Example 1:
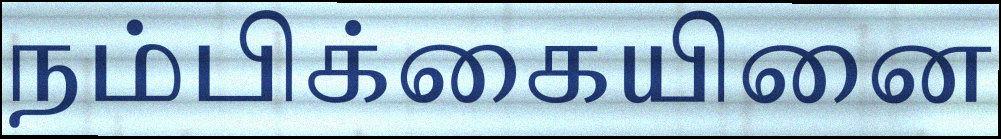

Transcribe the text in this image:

நம்பிக்கையினை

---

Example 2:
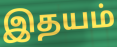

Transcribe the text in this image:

இதயம்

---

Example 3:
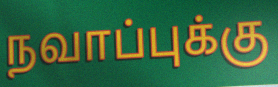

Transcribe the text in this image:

நவாப்புக்கு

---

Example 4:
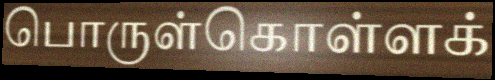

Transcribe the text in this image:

பொருள்கொள்ளக்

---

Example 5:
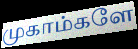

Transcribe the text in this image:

முகாம்களே